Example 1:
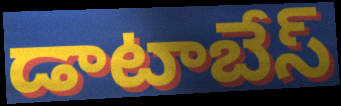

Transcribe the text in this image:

డాటాబేస్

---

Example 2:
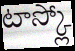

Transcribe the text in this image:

టాస్క్లో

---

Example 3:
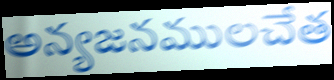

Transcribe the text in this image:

అన్యజనములచేత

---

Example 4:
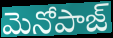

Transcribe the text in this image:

మెనోపాజ్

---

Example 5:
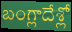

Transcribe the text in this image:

బంగ్లాదేశ్లో